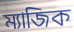
ম্যাজিক